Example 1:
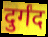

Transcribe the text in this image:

दुर्गंद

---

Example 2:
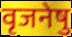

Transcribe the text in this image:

वृजनेषु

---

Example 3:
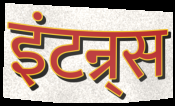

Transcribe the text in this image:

इंटन्र्स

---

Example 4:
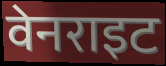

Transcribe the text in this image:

वेनराइट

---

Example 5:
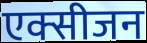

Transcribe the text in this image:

एक्सीजन